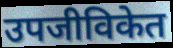
उपजीविकेत